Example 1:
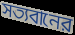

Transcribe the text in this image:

সত্যবানের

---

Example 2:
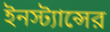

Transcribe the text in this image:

ইনস্ট্যান্সের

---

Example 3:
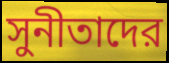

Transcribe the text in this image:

সুনীতাদের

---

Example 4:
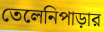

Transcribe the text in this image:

তেলেনিপাড়ার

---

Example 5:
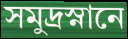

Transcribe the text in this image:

সমুদ্রস্নানে